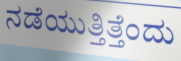
ನಡೆಯುತ್ತಿತ್ತೆಂದು